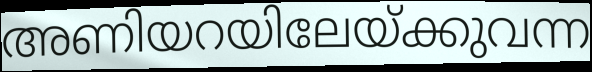
അണിയറയിലേയ്ക്കുവന്ന